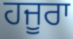
ਹਜੂਰਾ